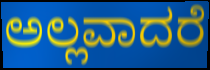
ಅಲ್ಲವಾದರೆ